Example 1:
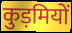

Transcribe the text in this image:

कुड़मियों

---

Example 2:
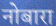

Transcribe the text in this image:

नोबारा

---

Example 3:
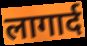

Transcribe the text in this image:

लागार्द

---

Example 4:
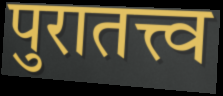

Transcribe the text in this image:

पुरातत्त्व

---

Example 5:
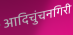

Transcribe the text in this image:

आदिचुंचनगिरी